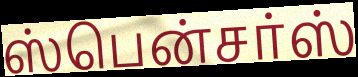
ஸ்பென்சர்ஸ்